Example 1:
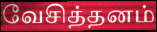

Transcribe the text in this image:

வேசித்தனம்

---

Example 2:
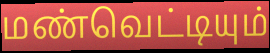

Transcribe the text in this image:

மண்வெட்டியும்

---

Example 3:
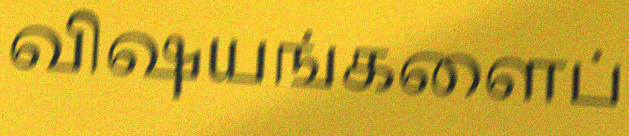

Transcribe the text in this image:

விஷயங்களைப்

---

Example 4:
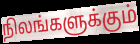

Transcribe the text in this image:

நிலங்களுக்கும்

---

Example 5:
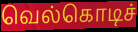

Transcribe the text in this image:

வெல்கொடிச்